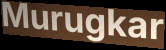
Murugkar